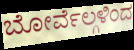
ಬೋರ್ವೆಲ್ಗಳಿಂದ